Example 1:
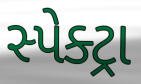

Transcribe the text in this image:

સ્પેક્ટ્રા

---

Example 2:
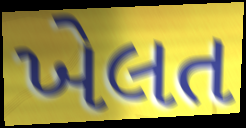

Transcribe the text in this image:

ખેલત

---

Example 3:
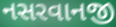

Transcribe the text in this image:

નસરવાનજી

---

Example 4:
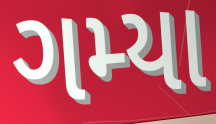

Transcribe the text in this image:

ગમ્યા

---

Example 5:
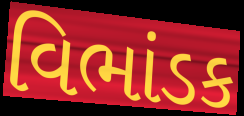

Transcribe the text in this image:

વિભાંડક